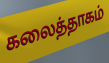
கலைத்தாகம்